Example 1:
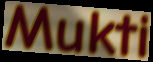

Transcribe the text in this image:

Mukti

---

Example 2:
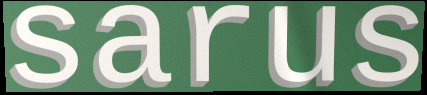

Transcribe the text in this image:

sarus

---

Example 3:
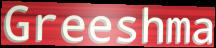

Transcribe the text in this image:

Greeshma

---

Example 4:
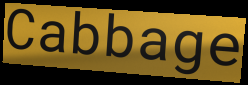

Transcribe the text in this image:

Cabbage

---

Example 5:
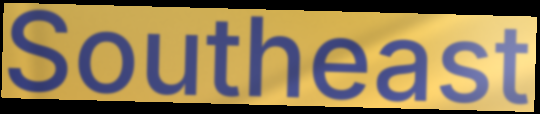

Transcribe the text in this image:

Southeast